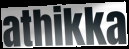
athikka